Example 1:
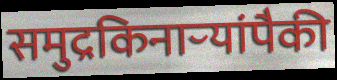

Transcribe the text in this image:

समुद्रकिनाऱ्यांपैकी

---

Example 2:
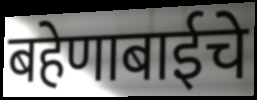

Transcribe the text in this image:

बहेणाबाईचे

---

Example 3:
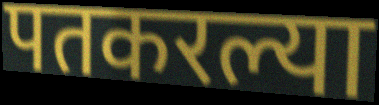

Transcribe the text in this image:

पतकरल्या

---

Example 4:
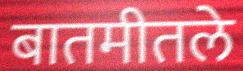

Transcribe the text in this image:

बातमीतले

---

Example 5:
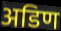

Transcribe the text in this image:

अडिण